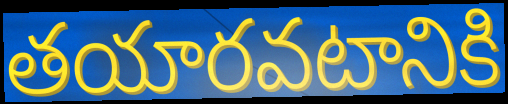
తయారవటానికి